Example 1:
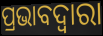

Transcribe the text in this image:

ପ୍ରଭାବଦ୍ୱାରା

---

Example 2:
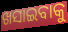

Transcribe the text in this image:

ଖସାଇବାକୁ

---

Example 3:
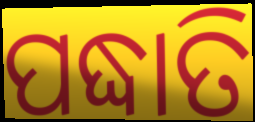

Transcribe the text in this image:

ପଦ୍ଧାତି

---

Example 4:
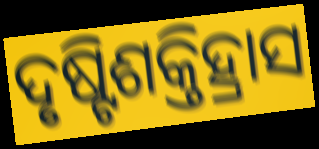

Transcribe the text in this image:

ଦୃଷ୍ଟିଶକ୍ତିହ୍ରାସ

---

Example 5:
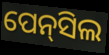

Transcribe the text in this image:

ପେନ୍‍ସିଲ